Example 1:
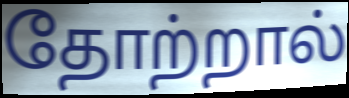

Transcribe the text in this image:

தோற்றால்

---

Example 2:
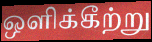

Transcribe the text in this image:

ஒளிக்கீற்று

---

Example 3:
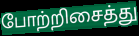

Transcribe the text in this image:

போற்றிசைத்து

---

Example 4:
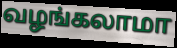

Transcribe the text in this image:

வழங்கலாமா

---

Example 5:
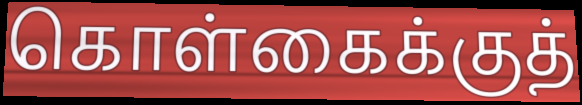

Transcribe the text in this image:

கொள்கைக்குத்